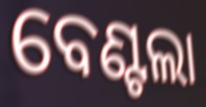
ବେଣ୍ଟଲା